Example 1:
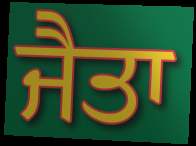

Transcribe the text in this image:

ਜੈਤਾ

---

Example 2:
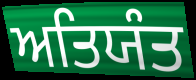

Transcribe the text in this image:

ਅਤਿਯੰਤ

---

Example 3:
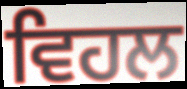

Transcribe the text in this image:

ਵਿਹਲ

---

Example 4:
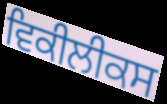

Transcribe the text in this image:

ਵਿਕੀਲੀਕਸ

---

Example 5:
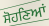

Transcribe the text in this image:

ਸੋਹਣਿਆਂ